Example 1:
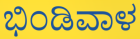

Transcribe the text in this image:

ಭಿಂಡಿವಾಳ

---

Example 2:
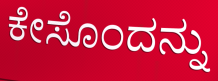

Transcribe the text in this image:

ಕೇಸೊಂದನ್ನು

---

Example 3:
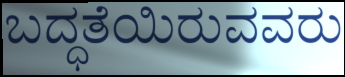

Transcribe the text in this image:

ಬದ್ಧತೆಯಿರುವವರು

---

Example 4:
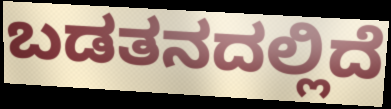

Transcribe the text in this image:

ಬಡತನದಲ್ಲಿದೆ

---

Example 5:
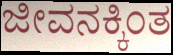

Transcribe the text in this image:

ಜೀವನಕ್ಕಿಂತ